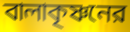
বালাকৃষ্ণনের